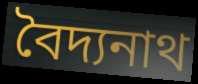
বৈদ্যনাথ